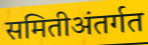
समितीअंतर्गत